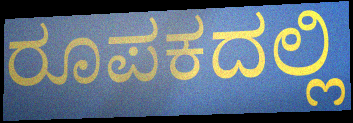
ರೂಪಕದಲ್ಲಿ